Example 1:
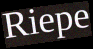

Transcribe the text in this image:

Riepe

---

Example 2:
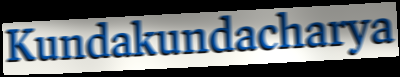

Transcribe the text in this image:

Kundakundacharya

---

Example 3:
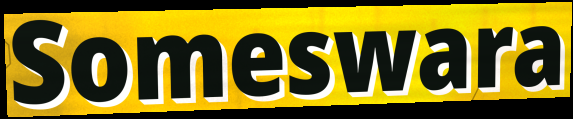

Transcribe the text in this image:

Someswara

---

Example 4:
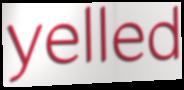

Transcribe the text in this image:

yelled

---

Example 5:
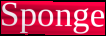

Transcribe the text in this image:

Sponge